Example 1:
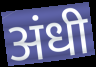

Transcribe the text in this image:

अंधी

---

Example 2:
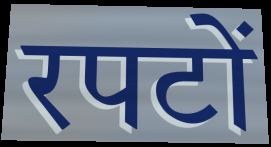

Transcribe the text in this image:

रपटों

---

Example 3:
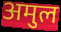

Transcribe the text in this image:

अमुल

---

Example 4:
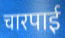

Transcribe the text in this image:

चारपाई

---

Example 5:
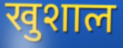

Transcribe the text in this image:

खुशाल